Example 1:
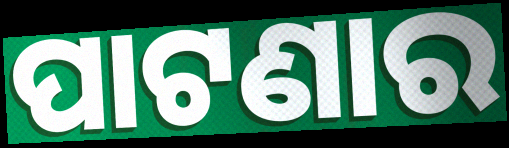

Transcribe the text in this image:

ପାଟଣାର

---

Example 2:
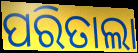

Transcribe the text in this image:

ପରିତାଲା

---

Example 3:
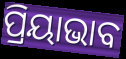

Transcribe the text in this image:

ପ୍ରିୟାଭାବ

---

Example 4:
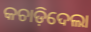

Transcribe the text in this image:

କଚାଡ଼ିଦେଲା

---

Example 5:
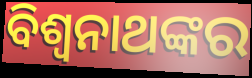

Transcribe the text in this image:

ବିଶ୍ୱନାଥଙ୍କର